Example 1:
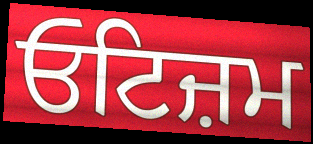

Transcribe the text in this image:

ਓਟਿਜ਼ਮ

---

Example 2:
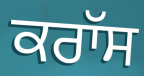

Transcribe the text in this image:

ਕਰਾੱਸ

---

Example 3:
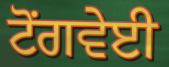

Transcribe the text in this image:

ਟੋਂਗਵੇਈ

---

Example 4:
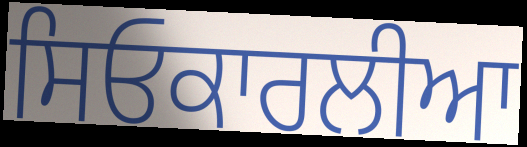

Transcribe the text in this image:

ਸਿਓਕਾਰਲੀਆ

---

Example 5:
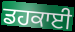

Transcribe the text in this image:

ਡਹਕਾਈ